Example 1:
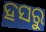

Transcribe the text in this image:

ହସରୁ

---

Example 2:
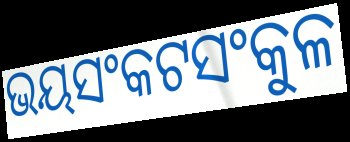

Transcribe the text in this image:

ଭୟସଂକଟସଂକୁଳ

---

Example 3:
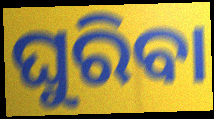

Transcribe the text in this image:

ଘୁରିବା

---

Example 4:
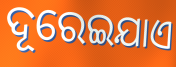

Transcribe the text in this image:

ଦୂରେଇଯାଏ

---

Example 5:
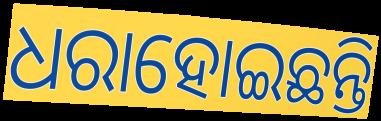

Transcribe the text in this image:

ଧରାହୋଇଛନ୍ତି